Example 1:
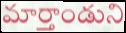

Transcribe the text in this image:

మార్తాండుని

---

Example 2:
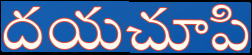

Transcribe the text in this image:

దయచూపి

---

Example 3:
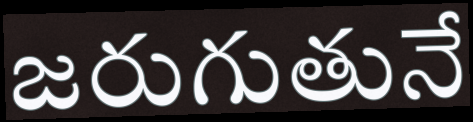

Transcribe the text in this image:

జరుగుతునే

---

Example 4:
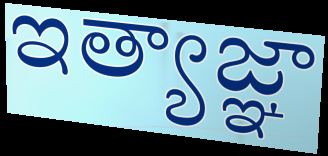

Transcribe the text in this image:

ఇత్యాజ్ఞా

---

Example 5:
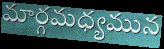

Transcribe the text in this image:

మార్గమధ్యమున